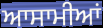
ਆਸਾਮੀਆਂ